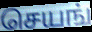
செயங்